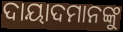
ଦାୟାଦମାନଙ୍କୁ